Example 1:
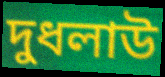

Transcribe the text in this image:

দুধলাউ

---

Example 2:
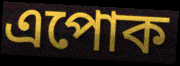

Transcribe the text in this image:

এপোক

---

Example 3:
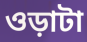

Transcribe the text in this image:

ওড়াটা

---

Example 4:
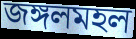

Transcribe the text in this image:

জঙ্গলমহল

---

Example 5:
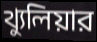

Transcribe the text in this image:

থ্যুলিয়ার